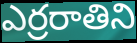
ఎర్రరాతిని